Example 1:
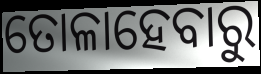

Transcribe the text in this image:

ତୋଳାହେବାରୁ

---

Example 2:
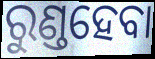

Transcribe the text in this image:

ରୁଣ୍ଡହେବା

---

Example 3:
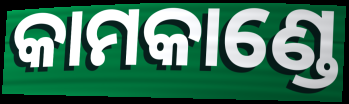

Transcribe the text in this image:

କାମକାଣ୍ଡେ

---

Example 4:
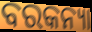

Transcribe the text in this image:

ବରକନ୍ୟା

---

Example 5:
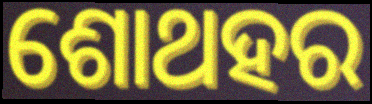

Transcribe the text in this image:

ଶୋଥହର